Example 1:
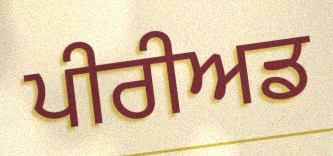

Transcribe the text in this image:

ਪੀਰੀਅਡ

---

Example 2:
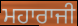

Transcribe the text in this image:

ਮਹਾਰਾਜੀ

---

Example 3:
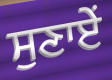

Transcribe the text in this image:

ਸੁਣਾਏਂ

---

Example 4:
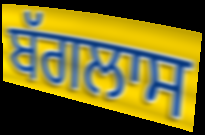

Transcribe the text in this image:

ਬੱਗਲਾਸ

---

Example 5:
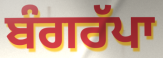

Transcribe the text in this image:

ਬੰਗਰੱਪਾ